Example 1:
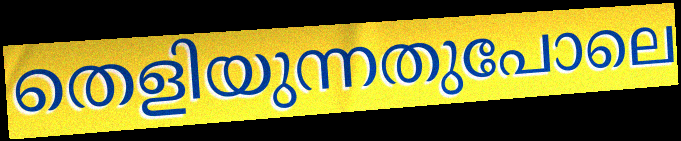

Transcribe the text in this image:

തെളിയുന്നതുപോലെ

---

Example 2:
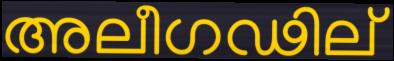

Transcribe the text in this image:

അലീഗഢില്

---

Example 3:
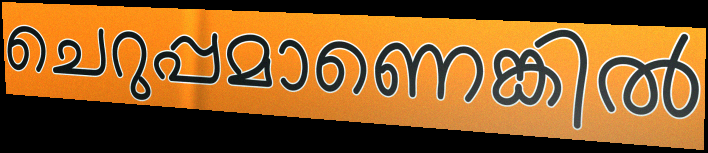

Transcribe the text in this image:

ചെറുപ്പമാണെങ്കിൽ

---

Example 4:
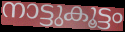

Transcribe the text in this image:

നാട്ടുകൂട്ടം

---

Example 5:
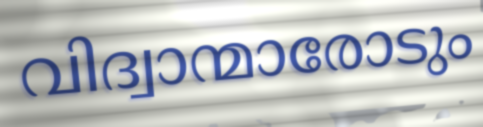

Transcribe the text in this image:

വിദ്വാന്മാരോടും